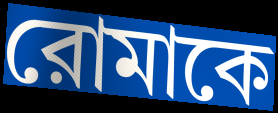
রোমাকে